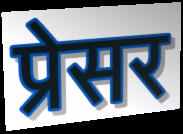
प्रेसर